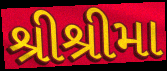
શ્રીશ્રીમા